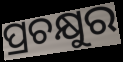
ପ୍ରଚକ୍ଷୁର